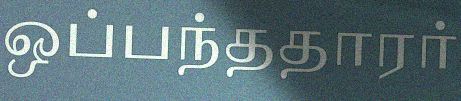
ஒப்பந்ததாரர்